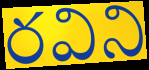
రవిని